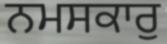
ਨਮਸਕਾਰੁ